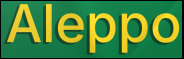
Aleppo